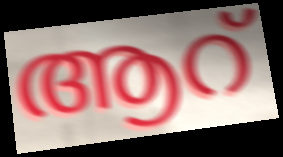
ആറ്